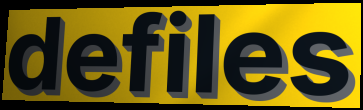
defiles